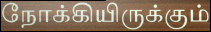
நோக்கியிருக்கும்